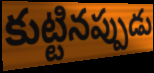
కుట్టినప్పుడు